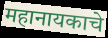
महानायकाचे